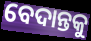
ବେଦାନ୍ତକୁ